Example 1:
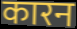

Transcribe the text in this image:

कारन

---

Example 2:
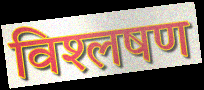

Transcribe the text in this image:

विश्लषण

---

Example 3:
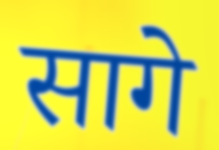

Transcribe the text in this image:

सागे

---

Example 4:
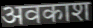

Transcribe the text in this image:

अवकाश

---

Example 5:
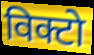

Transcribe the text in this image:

विक्टो